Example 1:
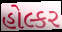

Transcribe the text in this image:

હોલ્કર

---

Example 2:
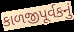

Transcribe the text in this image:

કાળજીપૂર્વકનું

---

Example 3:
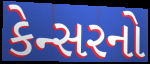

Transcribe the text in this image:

કેન્સરનો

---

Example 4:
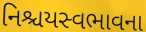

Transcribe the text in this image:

નિશ્ચયસ્વભાવના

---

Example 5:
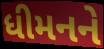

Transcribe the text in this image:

ધીમનને